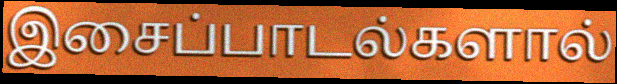
இசைப்பாடல்களால்